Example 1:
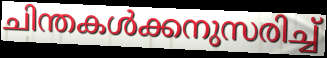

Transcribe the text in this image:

ചിന്തകൾക്കനുസരിച്ച്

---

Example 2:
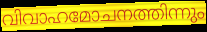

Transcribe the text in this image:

വിവാഹമോചനത്തിന്നും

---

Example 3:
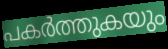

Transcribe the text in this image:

പകർത്തുകയും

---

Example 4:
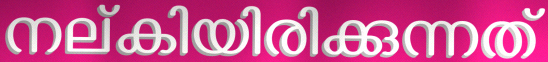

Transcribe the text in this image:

നല്‌കിയിരിക്കുന്നത്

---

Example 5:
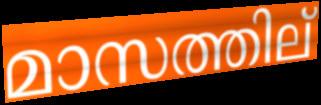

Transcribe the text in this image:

മാസത്തില്